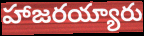
హాజరయ్యారు